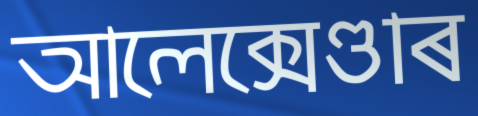
আলেক্সেণ্ডাৰ